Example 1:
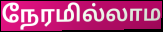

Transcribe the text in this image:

நேரமில்லாம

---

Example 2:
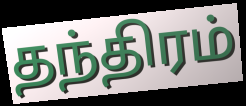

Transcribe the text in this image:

தந்திரம்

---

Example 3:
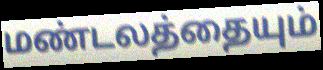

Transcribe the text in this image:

மண்டலத்தையும்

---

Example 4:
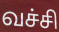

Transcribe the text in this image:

வச்சி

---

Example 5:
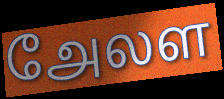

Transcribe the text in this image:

அேலள